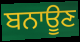
ਬਨਾਊਣ